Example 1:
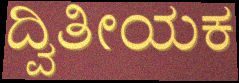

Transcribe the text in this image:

ದ್ವಿತೀಯಕ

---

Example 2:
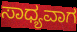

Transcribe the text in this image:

ಸಾಧ್ಯವಾಗ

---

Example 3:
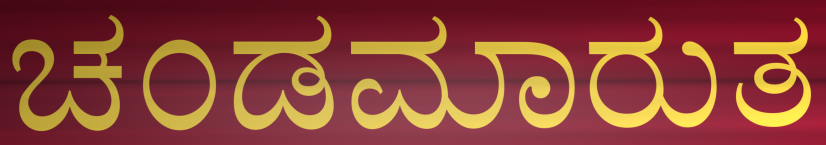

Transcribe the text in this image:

ಚಂಡಮಾರುತ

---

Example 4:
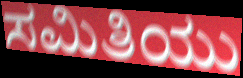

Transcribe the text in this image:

ಸಮಿತಿಯು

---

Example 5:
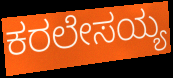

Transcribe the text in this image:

ಕರಲೇಸಯ್ಯ